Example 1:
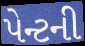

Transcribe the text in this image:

પેન્ટની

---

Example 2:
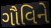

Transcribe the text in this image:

ગૌવિને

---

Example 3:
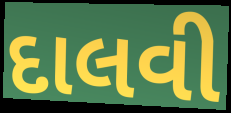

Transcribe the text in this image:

દાલવી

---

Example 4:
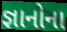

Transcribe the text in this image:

જ્ઞાનોના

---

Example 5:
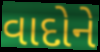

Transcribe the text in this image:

વાદોને